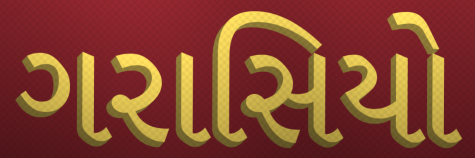
ગરાસિયો